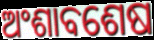
ଅଂଶାବଶେଷ